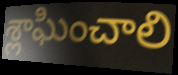
శ్లాఘించాలి